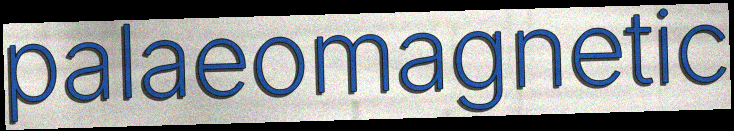
palaeomagnetic